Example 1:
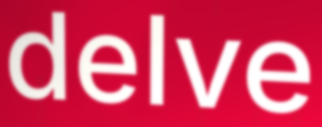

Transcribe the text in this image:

delve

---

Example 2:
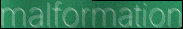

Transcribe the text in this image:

malformation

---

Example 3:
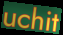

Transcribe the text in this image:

uchit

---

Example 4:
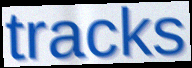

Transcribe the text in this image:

tracks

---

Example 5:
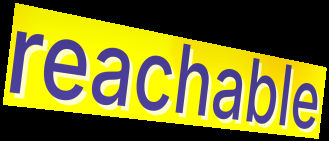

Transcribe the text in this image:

reachable